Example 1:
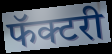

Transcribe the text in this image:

फॅक्‍टरी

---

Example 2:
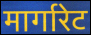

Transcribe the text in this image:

मार्गारेट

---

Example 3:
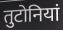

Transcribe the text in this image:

तुटोनियां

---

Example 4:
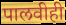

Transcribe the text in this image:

पालवीही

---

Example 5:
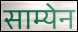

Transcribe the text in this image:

साम्येन